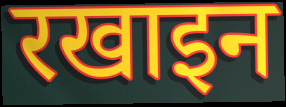
रखाइन